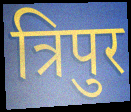
त्रिपुर